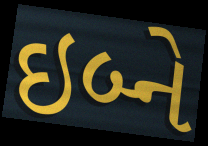
ઇબ્ને